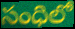
సంధిలో